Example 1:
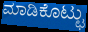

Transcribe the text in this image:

ಮಾಡಿಕೊಟ್ಟು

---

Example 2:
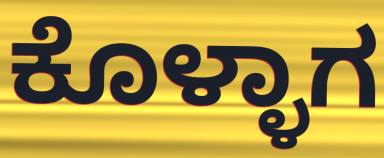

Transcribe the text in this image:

ಕೊಳ್ಳಾಗ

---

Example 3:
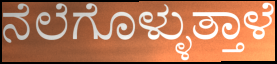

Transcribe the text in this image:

ನೆಲೆಗೊಳ್ಳುತ್ತಾಳೆ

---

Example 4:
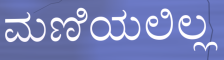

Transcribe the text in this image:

ಮಣಿಯಲಿಲ್ಲ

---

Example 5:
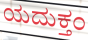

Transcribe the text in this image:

ಯದುಕ್ತಂ